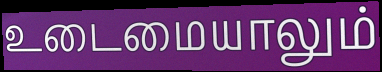
உடைமையாலும்